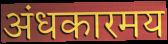
अंधकारमय